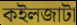
কইলজাটা